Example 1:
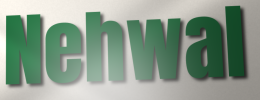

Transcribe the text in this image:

Nehwal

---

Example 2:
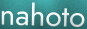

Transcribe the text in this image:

nahoto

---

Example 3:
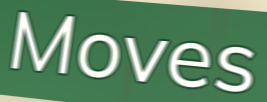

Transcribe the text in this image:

Moves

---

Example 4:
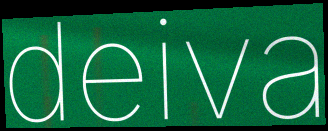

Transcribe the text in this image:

deiva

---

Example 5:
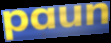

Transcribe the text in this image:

paun